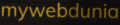
mywebdunia